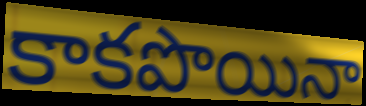
కాకపొయినా